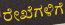
ರೇಖೆಗಳಿಗೆ